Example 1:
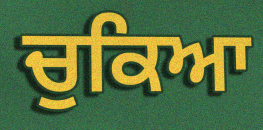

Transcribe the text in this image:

ਚੁਕਿਆ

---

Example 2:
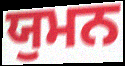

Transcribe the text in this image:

ਯੁਮਨ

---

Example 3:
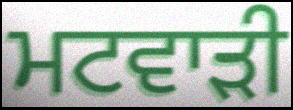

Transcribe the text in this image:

ਮਟਵਾੜੀ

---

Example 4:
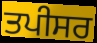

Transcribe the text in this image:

ਤਪੀਸਰ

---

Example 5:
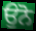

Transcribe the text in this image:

ਉਨੋ